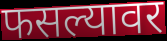
फसल्यावर